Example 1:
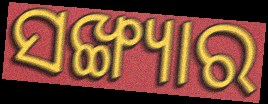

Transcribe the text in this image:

ସଙ୍ଖ୍ୟାର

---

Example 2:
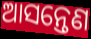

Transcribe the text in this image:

ଆସନ୍ତେଣ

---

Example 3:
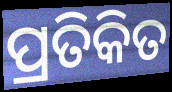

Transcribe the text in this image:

ପ୍ରତିକିତ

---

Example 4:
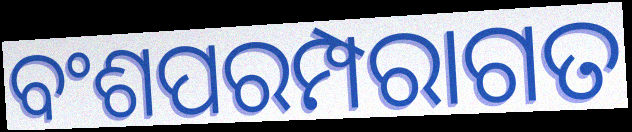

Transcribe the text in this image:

ବଂଶପରମ୍ପରାଗତ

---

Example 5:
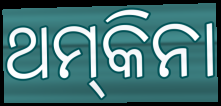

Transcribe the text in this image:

ଥମ୍‍କିନା